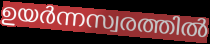
ഉയർന്നസ്വരത്തിൽ